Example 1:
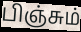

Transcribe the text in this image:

பிஞ்சும்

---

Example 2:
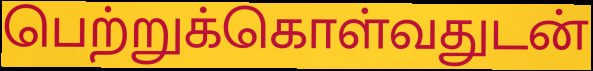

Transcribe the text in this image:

பெற்றுக்கொள்வதுடன்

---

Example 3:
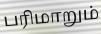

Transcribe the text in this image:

பரிமாறும்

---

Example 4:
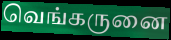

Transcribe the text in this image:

வெங்கருனை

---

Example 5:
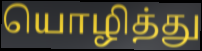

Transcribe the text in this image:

யொழித்து